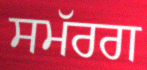
ਸਮੱਰਗ